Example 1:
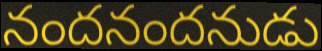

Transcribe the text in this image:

నందనందనుడు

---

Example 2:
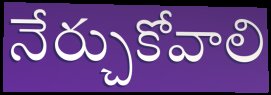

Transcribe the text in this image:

నేర్చుకోవాలి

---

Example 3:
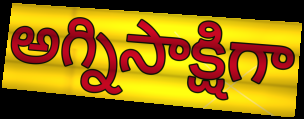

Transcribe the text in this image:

అగ్నిసాక్షిగా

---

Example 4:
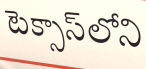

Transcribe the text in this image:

టెక్సాస్‌లోని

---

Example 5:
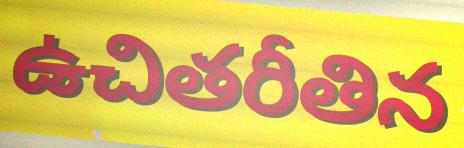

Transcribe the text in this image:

ఉచితరీతిన